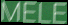
MELE